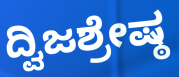
ದ್ವಿಜಶ್ರೇಷ್ಠ